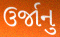
ઉર્જાનુ